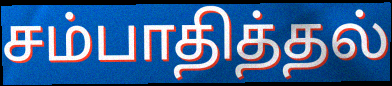
சம்பாதித்தல்